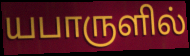
யபாருளில்